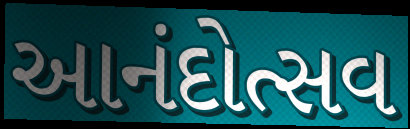
આનંદોત્સવ